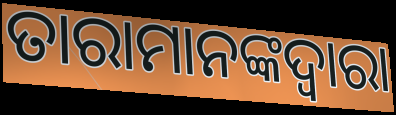
ତାରାମାନଙ୍କଦ୍ୱାରା